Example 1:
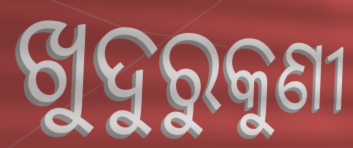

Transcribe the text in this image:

ଖୁଦୁରୁକୁଣୀ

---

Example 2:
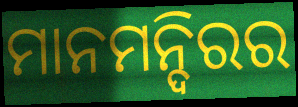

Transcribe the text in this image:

ମାନମନ୍ଦିରର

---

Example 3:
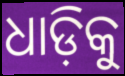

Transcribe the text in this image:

ଧାଡ଼ିକୁ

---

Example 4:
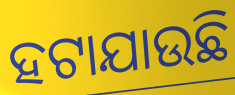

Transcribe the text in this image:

ହଟାଯାଉଛି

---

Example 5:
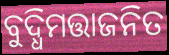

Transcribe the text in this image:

ବୁଦ୍ଧିମତ୍ତାଜନିତ